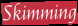
Skimming